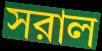
সরাল